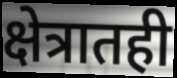
क्षेत्रातही